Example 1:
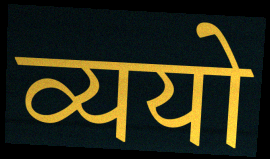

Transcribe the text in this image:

व्ययो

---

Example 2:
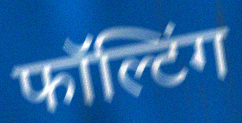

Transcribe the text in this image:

फॉल्टिंग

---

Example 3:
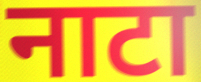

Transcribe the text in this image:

नाटा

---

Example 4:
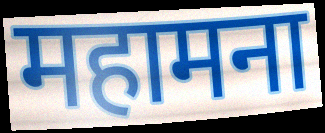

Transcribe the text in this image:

महामना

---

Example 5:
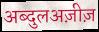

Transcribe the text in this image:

अब्दुलअज़ीज़